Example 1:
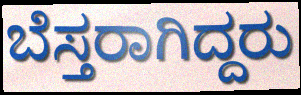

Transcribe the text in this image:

ಬೆಸ್ತರಾಗಿದ್ದರು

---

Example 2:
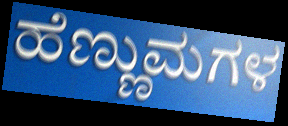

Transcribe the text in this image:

ಹೆಣ್ಣುಮಗಳ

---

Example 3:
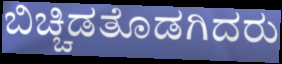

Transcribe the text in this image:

ಬಿಚ್ಚಿಡತೊಡಗಿದರು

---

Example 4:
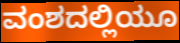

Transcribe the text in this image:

ವಂಶದಲ್ಲಿಯೂ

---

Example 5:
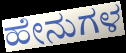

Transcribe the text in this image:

ಹೇನುಗಳ